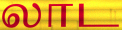
லாட